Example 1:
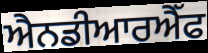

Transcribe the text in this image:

ਐਨਡੀਆਰਐੱਫ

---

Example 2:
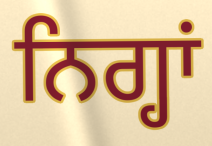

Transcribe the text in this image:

ਨਿਗ੍ਹਾਂ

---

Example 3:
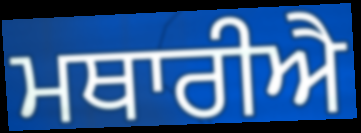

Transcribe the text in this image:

ਮਥਾਰੀਐ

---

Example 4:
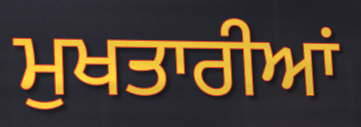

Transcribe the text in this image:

ਮੁਖਤਾਰੀਆਂ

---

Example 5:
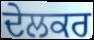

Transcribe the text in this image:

ਦੇਲਕਰ